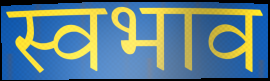
स्वभाव